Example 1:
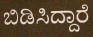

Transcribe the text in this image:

ಬಿಡಿಸಿದ್ದಾರೆ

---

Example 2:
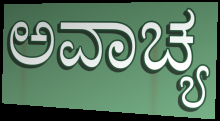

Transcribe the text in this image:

ಅವಾಚ್ಯ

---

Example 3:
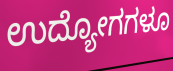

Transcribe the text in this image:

ಉದ್ಯೋಗಗಳೂ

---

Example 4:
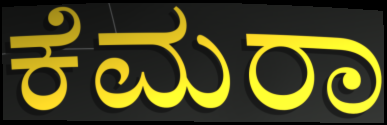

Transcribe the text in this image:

ಕೆಮರಾ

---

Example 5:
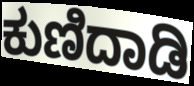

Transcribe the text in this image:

ಕುಣಿದಾಡಿ